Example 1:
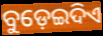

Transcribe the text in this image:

ବୁଡ଼େଇଦିଏ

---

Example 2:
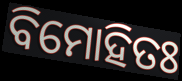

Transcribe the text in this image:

ବିମୋହିତଃ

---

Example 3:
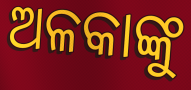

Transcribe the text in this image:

ଅଳକାଙ୍କୁ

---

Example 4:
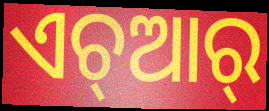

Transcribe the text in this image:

ଏଚ୍ଆର୍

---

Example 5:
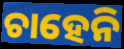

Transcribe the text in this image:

ଚାହେନି